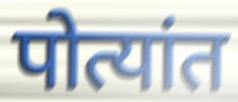
पोत्यांत